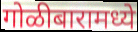
गोळीबारामध्ये